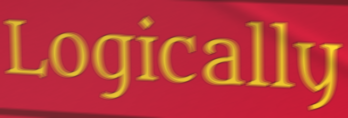
Logically